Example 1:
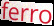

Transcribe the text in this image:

ferro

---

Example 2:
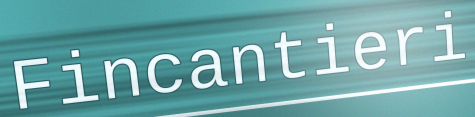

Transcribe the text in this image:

Fincantieri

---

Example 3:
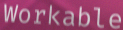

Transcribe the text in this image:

Workable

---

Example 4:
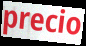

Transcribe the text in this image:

precio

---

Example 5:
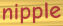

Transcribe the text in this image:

nipple